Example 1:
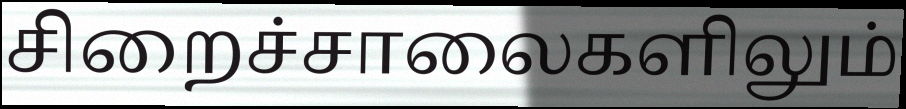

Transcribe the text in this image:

சிறைச்சாலைகளிலும்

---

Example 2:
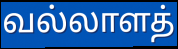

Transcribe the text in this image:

வல்லாளத்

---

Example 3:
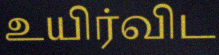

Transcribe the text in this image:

உயிர்விட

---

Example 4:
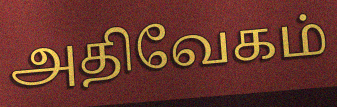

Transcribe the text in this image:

அதிவேகம்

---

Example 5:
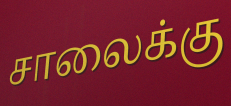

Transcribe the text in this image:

சாலைக்கு